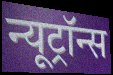
न्यूट्रॉन्स